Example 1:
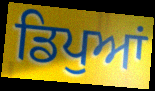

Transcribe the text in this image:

ਡਿਪੁਆਂ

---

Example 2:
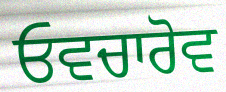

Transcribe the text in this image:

ਓਵਚਾਰੋਵ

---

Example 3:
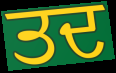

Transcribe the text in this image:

ਤਦ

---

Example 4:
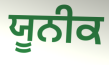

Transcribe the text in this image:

ਯੂਨੀਕ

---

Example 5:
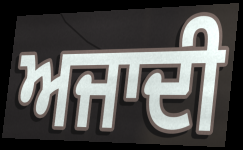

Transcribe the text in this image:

ਅਜਾਦੀ